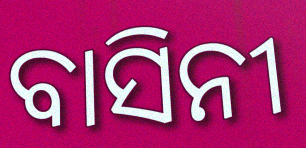
ବାସିନୀ